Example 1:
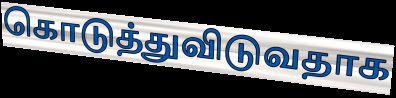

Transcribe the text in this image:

கொடுத்துவிடுவதாக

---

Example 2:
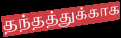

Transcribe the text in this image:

தந்தத்துக்காக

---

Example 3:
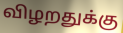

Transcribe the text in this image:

விழறதுக்கு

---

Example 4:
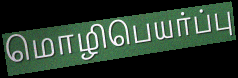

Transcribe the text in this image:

மொழிபெயர்ப்பு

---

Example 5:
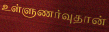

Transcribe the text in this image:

உள்ளுணர்வுதான்